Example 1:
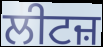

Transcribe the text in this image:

ਲੀਟਜ਼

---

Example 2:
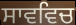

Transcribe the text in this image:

ਸਾਵਵਿਚ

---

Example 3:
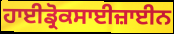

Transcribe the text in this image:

ਹਾਈਡ੍ਰੋਕਸਾਈਜ਼ਾਈਨ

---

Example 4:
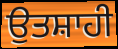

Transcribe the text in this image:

ਉਤਸ਼ਾਹੀ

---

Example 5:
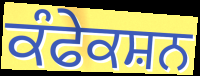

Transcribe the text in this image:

ਕੰਫੇਕਸ਼ਨ